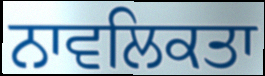
ਨਾਵਲਿਕਤਾ